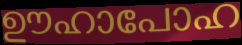
ഊഹാപോഹ